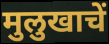
मुलुखाचें